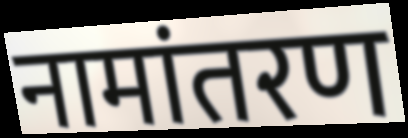
नामांतरण